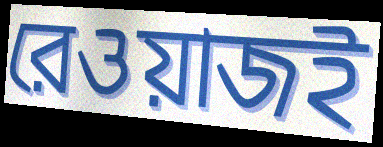
রেওয়াজই